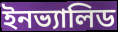
ইনভ্যালিড